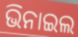
ଭିନାଇଲ